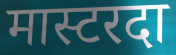
मास्टरदा